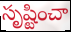
సృష్టించా